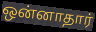
ஒன்னாதார்